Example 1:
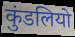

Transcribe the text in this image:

कुंडलियो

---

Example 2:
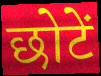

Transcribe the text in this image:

छोटें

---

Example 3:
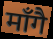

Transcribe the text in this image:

माँगै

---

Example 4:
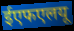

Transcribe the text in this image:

ईएफएलयू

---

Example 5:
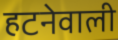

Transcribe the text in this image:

हटनेवाली